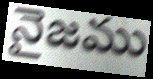
నైజము